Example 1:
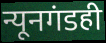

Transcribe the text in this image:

न्यूनगंडही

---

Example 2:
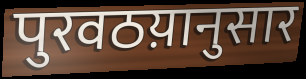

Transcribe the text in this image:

पुरवठय़ानुसार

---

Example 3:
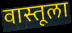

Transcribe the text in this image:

वास्तूला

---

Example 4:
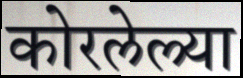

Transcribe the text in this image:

कोरलेल्या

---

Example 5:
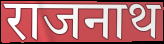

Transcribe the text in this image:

राजनाथ